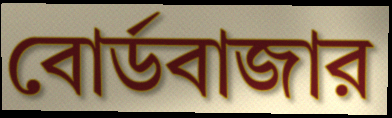
বোর্ডবাজার